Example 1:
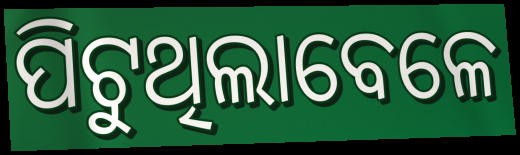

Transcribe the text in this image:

ପିଟୁଥିଲାବେଳେ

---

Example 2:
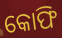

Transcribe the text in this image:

କୋଫି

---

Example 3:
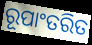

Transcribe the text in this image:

ରୂପାଂତରିତ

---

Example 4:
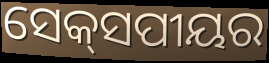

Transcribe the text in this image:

ସେକ୍‌ସପୀୟର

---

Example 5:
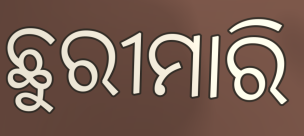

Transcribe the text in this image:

ଛୁରୀମାରି